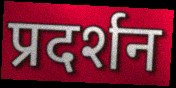
प्रदर्शन